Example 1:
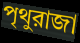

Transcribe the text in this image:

পৃথুরাজা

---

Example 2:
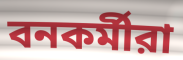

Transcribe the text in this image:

বনকর্মীরা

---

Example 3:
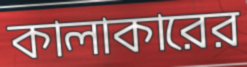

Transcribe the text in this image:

কালাকারের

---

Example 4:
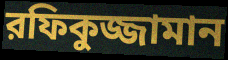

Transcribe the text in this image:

রফিকুজ্জামান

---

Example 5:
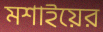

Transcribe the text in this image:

মশাইয়ের